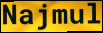
Najmul